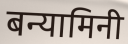
बन्यामिनी